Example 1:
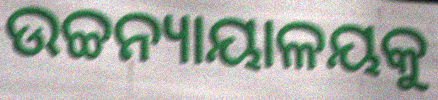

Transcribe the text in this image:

ଉଚ୍ଚନ୍ୟାୟାଳୟକୁ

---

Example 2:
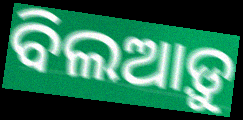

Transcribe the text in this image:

ବିଲଆଡ଼ୁ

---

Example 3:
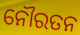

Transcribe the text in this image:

ନୌରତନ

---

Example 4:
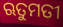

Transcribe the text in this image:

ଋତୁମତୀ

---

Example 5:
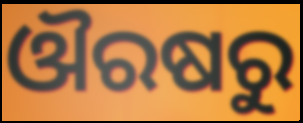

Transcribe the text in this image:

ଔରଷରୁ